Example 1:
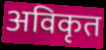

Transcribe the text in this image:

अविकृत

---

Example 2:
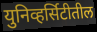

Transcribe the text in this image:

युनिव्हर्सिटीतील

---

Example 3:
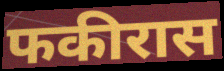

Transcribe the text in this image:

फकीरास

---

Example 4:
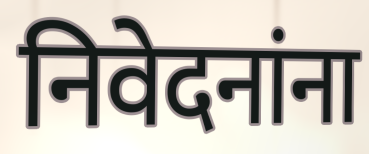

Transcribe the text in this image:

निवेदनांना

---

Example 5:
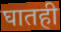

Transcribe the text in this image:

घातही